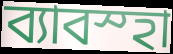
ব্যাবস্হা